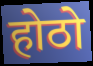
होठो